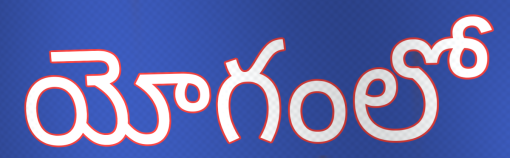
యోగంలో